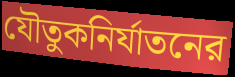
যৌতুকনির্যাতনের